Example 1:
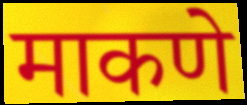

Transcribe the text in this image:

माकणे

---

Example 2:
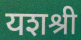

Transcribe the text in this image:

यशश्री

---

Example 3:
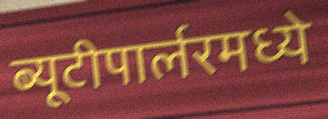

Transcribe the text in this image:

ब्यूटीपार्लरमध्ये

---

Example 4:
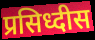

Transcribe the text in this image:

प्रसिध्दीस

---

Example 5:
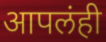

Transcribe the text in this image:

आपलंही